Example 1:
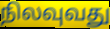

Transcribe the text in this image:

நிலவுவது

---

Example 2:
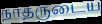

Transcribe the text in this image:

நாதருடைய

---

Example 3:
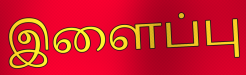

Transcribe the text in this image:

இளைப்பு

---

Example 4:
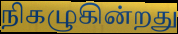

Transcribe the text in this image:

நிகழுகின்றது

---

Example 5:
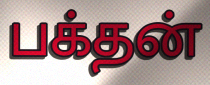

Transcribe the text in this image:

பக்தன்